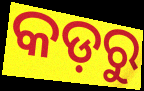
କଡ଼ରୁ